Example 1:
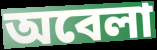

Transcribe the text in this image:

অবেলা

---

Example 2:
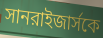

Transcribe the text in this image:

সানরাইজার্সকে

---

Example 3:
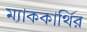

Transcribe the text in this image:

ম্যাককার্থির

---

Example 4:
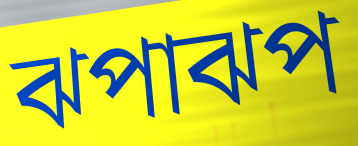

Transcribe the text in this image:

ঝপাঝপ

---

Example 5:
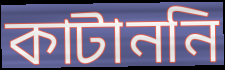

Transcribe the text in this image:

কাটাননি